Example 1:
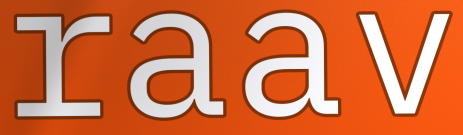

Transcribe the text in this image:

raav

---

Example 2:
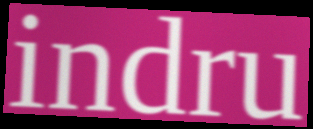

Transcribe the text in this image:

indru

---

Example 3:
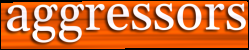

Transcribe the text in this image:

aggressors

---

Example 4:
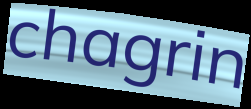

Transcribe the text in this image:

chagrin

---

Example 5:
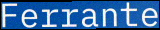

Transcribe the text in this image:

Ferrante